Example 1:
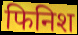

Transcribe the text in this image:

फिनिश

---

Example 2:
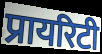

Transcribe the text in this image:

प्रायरिटी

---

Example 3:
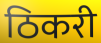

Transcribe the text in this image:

ठिकरी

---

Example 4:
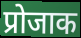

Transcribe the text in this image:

प्रोजाक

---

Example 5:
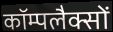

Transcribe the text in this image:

कॉम्पलैक्सों